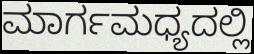
ಮಾರ್ಗಮಧ್ಯದಲ್ಲಿ